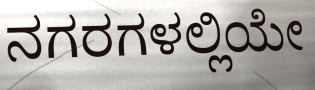
ನಗರಗಳಲ್ಲಿಯೇ